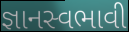
જ્ઞાનસ્વભાવી